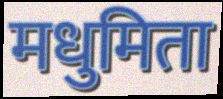
मधुमिता